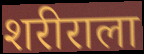
शरीराला